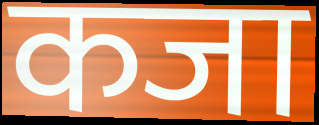
कजा